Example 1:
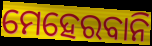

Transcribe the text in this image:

ମେହେରବାନି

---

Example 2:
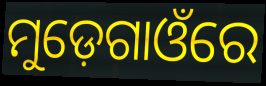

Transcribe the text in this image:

ମୁଡ଼େଗାଓଁରେ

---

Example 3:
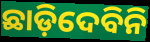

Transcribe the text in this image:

ଛାଡ଼ିଦେବିନି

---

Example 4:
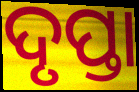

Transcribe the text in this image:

ଦୃପ୍ତା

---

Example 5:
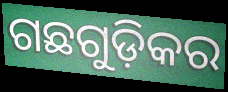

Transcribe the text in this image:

ଗଛଗୁଡ଼ିକର